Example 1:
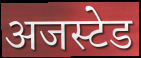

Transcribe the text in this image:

अजस्टेड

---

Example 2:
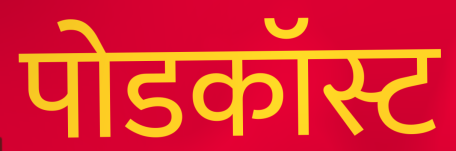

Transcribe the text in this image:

पोडकॉस्ट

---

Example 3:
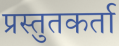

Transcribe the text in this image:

प्रस्तुतकर्ता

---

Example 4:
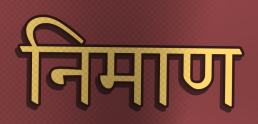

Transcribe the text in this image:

निमाण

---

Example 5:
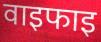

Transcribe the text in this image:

वाइफाइ